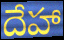
దేహా